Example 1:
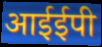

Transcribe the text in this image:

आईईपी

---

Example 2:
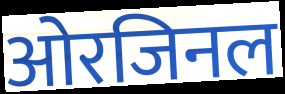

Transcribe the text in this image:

ओरजिनल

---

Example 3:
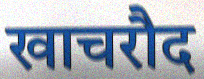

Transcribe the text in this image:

खाचरौद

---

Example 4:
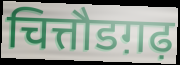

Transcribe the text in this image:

चित्तौडग़ढ़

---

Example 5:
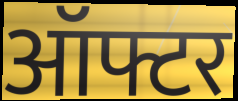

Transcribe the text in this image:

ऑफ्टर